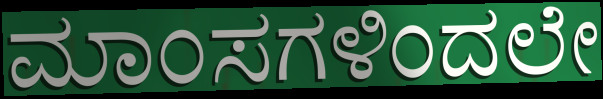
ಮಾಂಸಗಳಿಂದಲೇ